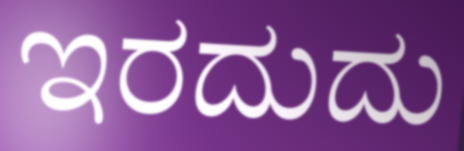
ಇರದುದು